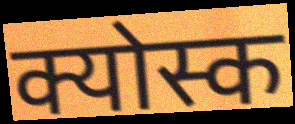
क्योस्क